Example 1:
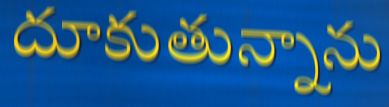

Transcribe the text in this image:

దూకుతున్నాను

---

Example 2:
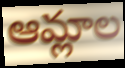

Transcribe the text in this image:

ఆమ్లాల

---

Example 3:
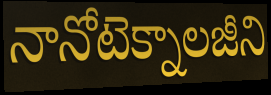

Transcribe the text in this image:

నానోటెక్నాలజీని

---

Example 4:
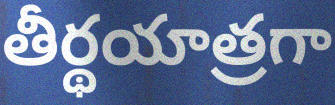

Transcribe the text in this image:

తీర్థయాత్రగా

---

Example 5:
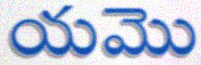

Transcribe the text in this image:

యమొ